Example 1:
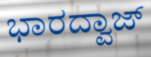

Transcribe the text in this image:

ಭಾರದ್ವಾಜ್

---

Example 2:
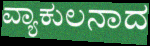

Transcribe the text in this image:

ವ್ಯಾಕುಲನಾದ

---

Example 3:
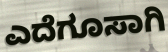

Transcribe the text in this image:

ಎದೆಗೂಸಾಗಿ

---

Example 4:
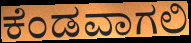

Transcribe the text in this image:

ಕೆಂಡವಾಗಲಿ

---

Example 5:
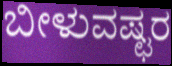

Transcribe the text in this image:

ಬೀಳುವಷ್ಟರ